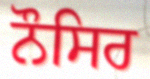
ਨੌਸਿਰ